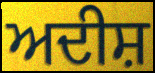
ਅਦੀਸ਼